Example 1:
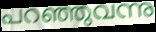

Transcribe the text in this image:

പറഞ്ഞുവന്നു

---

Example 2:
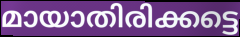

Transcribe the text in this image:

മായാതിരിക്കട്ടെ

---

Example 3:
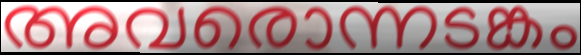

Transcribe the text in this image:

അവരൊന്നടങ്കം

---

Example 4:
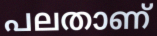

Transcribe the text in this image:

പലതാണ്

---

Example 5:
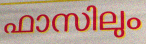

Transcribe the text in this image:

ഫാസിലും